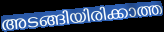
അടങ്ങിയിരിക്കാത്ത